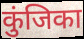
कुंजिका